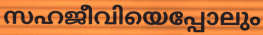
സഹജീവിയെപ്പോലും